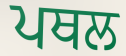
ਪਥਲ